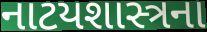
નાટયશાસ્ત્રના